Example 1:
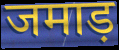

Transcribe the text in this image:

जमाड़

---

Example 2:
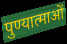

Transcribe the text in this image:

पुण्यात्माओं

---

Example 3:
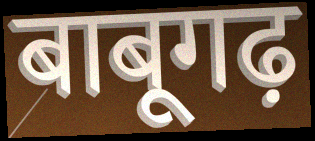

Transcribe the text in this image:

बाबूगढ़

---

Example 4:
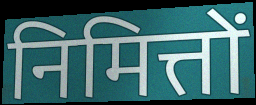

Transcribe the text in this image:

निमित्तों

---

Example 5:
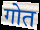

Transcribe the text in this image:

गोत